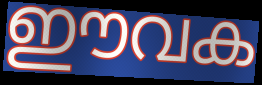
ഈവക